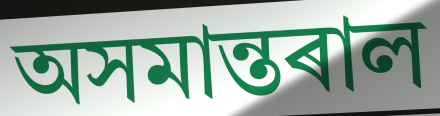
অসমান্তৰাল